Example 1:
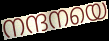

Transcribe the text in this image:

നന്ദനയെ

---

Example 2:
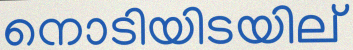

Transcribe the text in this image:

നൊടിയിടയില്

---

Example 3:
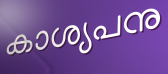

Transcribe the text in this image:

കാശ്യപനു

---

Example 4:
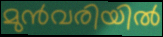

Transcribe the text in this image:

മുൻവരിയിൽ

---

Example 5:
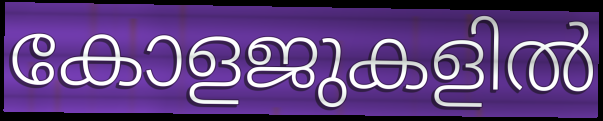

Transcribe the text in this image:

കോളജുകളിൽ